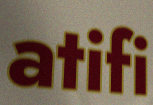
atifi